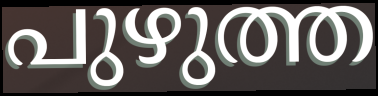
പുഴുത്ത